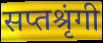
सप्तश्रृंगी